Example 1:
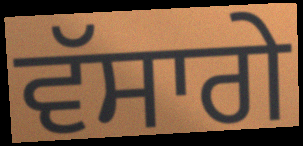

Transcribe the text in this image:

ਵੱਸਾਗੇ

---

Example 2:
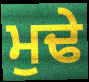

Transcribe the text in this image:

ਮੁਢੇ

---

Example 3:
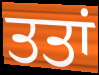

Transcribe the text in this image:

ਤਤਾਂ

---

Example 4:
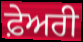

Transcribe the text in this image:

ਫ਼ੇਅਰੀ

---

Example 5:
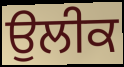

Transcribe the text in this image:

ਉਲੀਕ